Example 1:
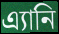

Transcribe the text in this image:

এ্যানি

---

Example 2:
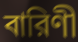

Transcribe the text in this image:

বারিণী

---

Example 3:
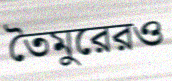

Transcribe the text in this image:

তৈমুরেরও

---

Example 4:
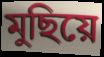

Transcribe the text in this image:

মুছিয়ে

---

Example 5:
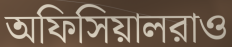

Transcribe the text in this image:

অফিসিয়ালরাও